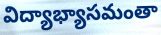
విద్యాభ్యాసమంతా